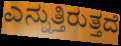
ಎನ್ನುತ್ತಿರುತ್ತದೆ